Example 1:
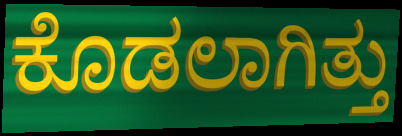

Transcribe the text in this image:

ಕೊಡಲಾಗಿತ್ತು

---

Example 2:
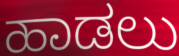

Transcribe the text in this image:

ಹಾಡಲು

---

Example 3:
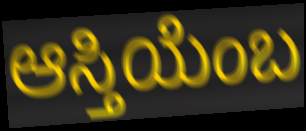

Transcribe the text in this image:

ಆಸ್ತಿಯೆಂಬ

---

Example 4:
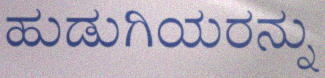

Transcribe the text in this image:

ಹುಡುಗಿಯರನ್ನು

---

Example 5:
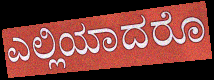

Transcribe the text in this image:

ಎಲ್ಲಿಯಾದರೊ